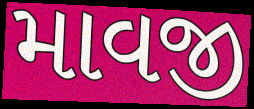
માવજી